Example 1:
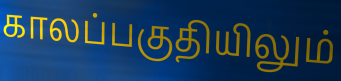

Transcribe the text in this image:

காலப்பகுதியிலும்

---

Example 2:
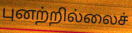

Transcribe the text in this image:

புனற்றில்லைச்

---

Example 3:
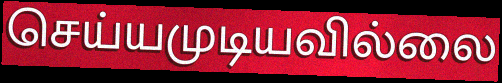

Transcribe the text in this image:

செய்யமுடியவில்லை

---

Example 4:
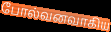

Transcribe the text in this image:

போல்வனவாகிய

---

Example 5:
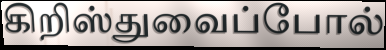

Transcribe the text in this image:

கிறிஸ்துவைப்போல்